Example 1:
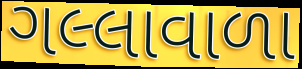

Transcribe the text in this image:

ગલ્લાવાળા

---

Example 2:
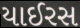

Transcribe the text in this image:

યાઈરસ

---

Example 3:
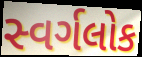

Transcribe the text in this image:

સ્વર્ગલોક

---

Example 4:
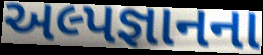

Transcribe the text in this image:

અલ્પજ્ઞાનના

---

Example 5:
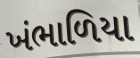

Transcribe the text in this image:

ખંભાળિયા